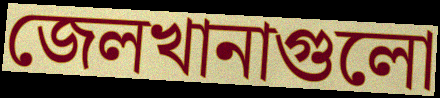
জেলখানাগুলো